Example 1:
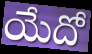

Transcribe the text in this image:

యేదో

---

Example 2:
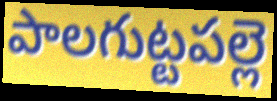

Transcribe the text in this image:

పాలగుట్టపల్లె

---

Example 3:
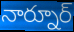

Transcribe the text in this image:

నార్నూర్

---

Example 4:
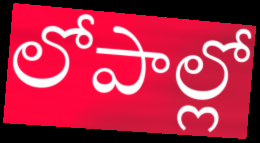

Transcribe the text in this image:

లోపాల్లో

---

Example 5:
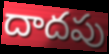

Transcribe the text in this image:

దాదపు